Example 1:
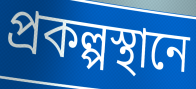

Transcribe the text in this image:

প্রকল্পস্থানে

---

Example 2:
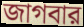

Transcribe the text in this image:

জাগবার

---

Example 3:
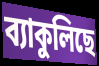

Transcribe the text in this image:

ব্যাকুলিছে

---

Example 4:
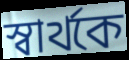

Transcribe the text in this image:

স্বার্থকে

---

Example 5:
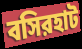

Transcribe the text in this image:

বসিরহাট